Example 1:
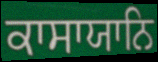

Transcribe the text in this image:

ਕਾਸਾਯਾਨਿ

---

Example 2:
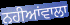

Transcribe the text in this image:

ਨਹੀਆਂਵਾਲਾ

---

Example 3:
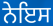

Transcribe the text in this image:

ਨੇਇਸ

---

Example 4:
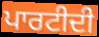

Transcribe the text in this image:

ਪਾਰਟੀਦੀ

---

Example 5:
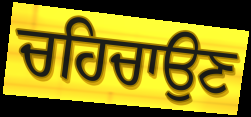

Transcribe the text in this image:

ਚਹਿਚਾਉਣ